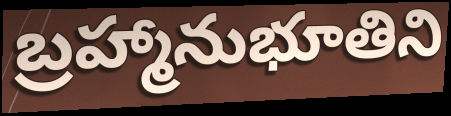
బ్రహ్మానుభూతిని